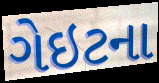
ગેઇટના